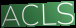
ACLS